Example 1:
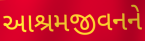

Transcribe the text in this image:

આશ્રમજીવનને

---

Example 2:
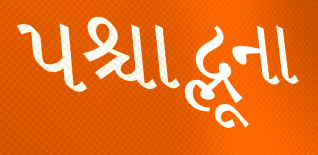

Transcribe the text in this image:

પશ્ચાદ્ભૂના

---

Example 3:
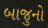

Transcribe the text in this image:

બાજુનો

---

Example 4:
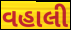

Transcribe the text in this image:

વહાલી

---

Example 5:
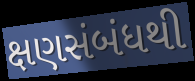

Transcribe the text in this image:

ક્ષણસંબંધથી